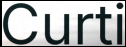
Curti